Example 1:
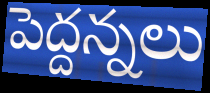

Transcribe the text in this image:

పెద్దన్నలు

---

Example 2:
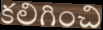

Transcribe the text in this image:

కలిగించి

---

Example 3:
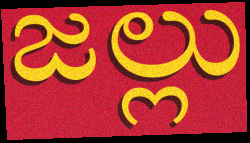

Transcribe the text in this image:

జల్లు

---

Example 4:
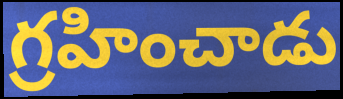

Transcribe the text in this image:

గ్రహించాడు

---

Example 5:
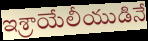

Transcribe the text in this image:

ఇశ్రాయేలీయుడినే